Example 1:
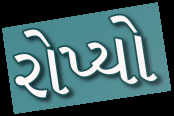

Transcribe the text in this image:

રોપ્યો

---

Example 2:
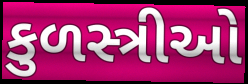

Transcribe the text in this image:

કુળસ્ત્રીઓ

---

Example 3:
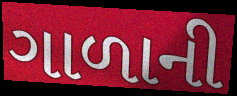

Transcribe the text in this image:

ગાળાની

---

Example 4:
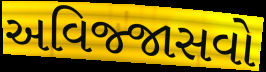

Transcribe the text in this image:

અવિજ્જાસવો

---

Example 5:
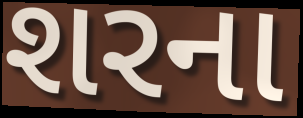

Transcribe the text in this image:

શરના